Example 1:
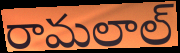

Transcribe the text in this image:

రామలాల్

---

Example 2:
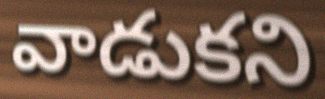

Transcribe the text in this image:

వాడుకని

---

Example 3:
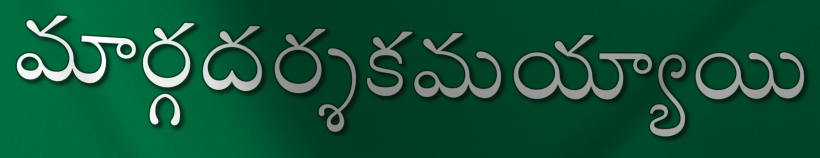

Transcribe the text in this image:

మార్గదర్శకమయ్యాయి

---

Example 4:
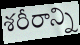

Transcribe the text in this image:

శరీరాన్ని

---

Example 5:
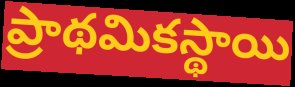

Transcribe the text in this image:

ప్రాథమికస్థాయి